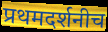
प्रथमदर्शनीच